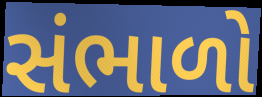
સંભાળો